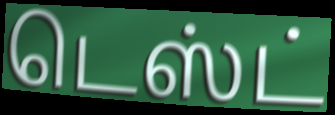
டெஸ்ட்